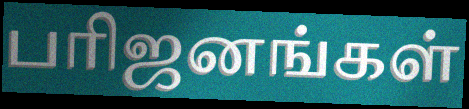
பரிஜனங்கள்